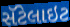
સૅટેલાઇટ